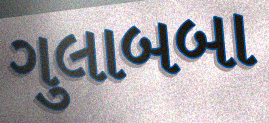
ગુલાબબા